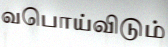
வபொய்விடும்